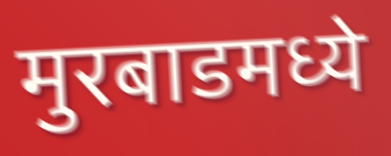
मुरबाडमध्ये